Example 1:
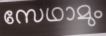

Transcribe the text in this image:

സേഥാമും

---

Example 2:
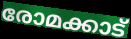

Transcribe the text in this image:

രോമക്കാട്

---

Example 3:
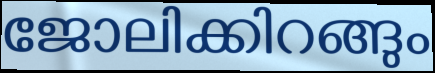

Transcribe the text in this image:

ജോലിക്കിറങ്ങും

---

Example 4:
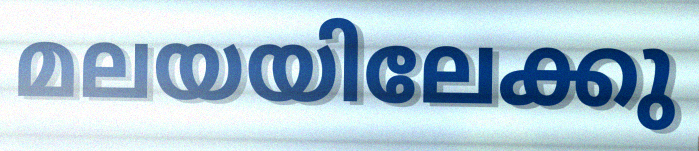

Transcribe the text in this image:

മലയയിലേക്കു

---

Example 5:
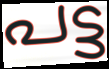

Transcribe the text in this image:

പട്ട